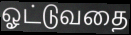
ஓட்டுவதை